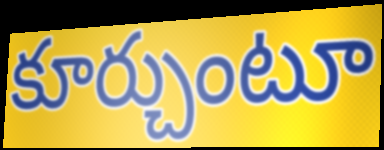
కూర్చుంటూ